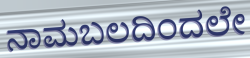
ನಾಮಬಲದಿಂದಲೇ